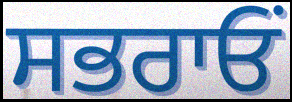
ਸਭਰਾਓਂ